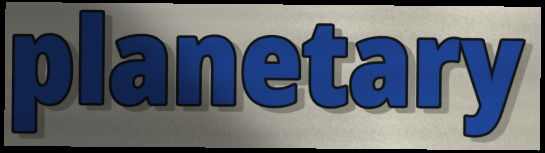
planetary